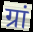
ग्रां